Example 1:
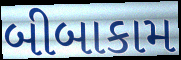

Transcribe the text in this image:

બીબાકામ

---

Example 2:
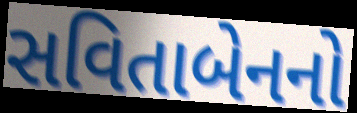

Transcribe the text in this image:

સવિતાબેનનો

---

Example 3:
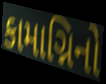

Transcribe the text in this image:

કામાગ્નિનો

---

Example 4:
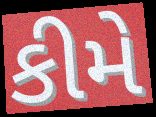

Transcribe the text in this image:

કીમે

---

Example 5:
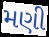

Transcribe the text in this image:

મણી